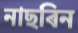
নাছৰিন